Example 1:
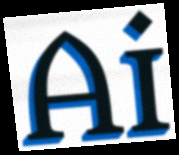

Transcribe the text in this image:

Ai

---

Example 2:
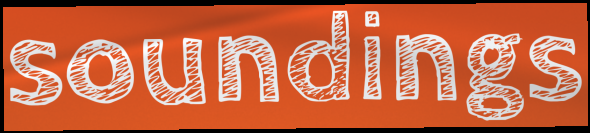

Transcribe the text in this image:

soundings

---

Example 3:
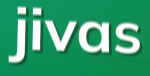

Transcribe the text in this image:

jivas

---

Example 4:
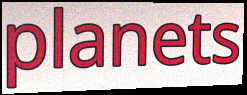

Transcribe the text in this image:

planets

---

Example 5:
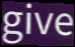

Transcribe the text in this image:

give